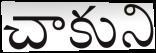
చాకుని